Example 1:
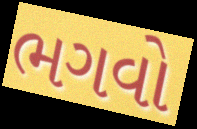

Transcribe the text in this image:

ભગવો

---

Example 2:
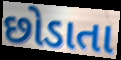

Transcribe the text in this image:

છોડાતા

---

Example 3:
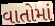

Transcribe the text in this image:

વાતોમાં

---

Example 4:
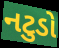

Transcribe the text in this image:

નટુડો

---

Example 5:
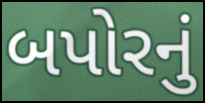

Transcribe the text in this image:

બપોરનું